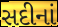
સદીનાં